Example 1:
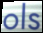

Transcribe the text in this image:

ols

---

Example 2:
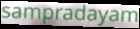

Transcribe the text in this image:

sampradayam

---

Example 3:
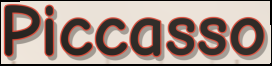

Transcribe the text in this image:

Piccasso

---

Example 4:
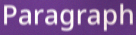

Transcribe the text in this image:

Paragraph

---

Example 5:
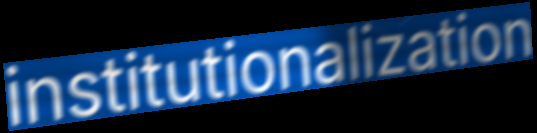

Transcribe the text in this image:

institutionalization